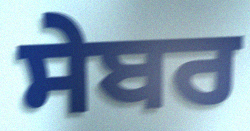
ਸੇਬਰ